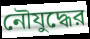
নৌযুদ্ধের